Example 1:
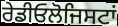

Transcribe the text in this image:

ਰੇਡੀਓਲੋਜਿਸਟਾਂ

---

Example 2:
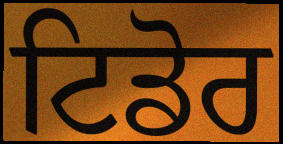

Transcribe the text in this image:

ਟਿਡੋਰ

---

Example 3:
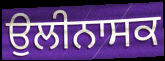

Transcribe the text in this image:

ਉਲੀਨਾਸਕ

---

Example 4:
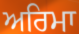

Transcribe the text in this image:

ਅਰਿਮਾ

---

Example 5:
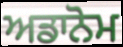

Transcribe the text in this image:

ਅਡਾਨੋਮ